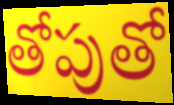
తోపుతో